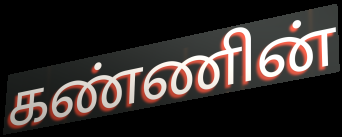
கண்ணின்